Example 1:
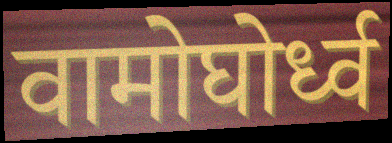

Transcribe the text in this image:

वामोघोर्ध्व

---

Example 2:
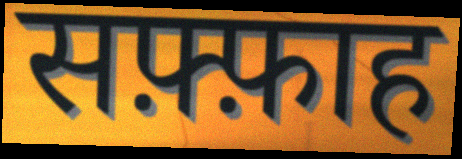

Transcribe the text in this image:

सफ़्फ़ाह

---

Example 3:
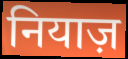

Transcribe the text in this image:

नियाज़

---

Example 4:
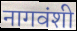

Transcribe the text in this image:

नागवंशी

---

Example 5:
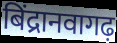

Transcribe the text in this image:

बिंद्रानवागढ़